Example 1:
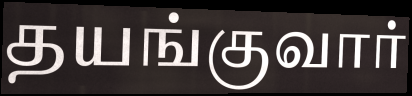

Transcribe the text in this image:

தயங்குவார்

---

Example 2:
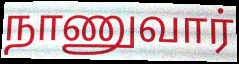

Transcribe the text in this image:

நாணுவார்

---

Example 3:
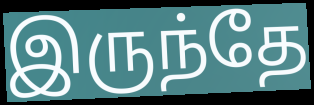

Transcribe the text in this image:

இருந்தே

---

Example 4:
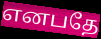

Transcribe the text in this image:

எனபதே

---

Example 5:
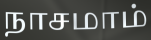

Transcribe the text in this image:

நாசமாம்